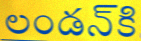
లండన్‌కి